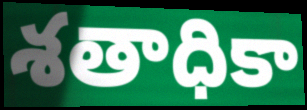
శతాధికా